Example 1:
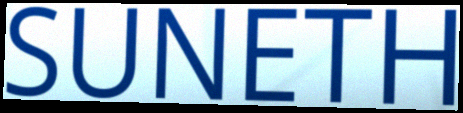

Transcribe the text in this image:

SUNETH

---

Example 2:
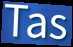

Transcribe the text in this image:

Tas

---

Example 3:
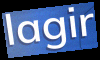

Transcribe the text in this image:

lagir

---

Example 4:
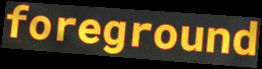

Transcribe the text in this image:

foreground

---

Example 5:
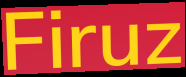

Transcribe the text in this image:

Firuz